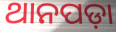
ଥାନପଡ଼ା